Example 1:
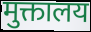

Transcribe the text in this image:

मुक्तालय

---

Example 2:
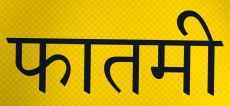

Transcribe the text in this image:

फातमी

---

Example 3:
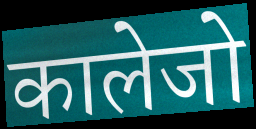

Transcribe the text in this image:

कालेजो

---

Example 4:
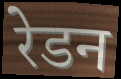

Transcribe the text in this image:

रेडन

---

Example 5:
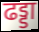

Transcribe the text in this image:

ढड्डा